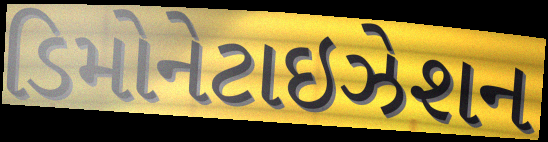
ડિમોનેટાઇઝેશન